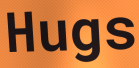
Hugs